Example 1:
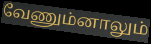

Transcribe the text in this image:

வேணும்னாலும்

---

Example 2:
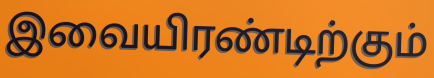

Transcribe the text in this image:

இவையிரண்டிற்கும்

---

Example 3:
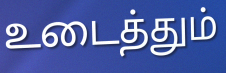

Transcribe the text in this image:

உடைத்தும்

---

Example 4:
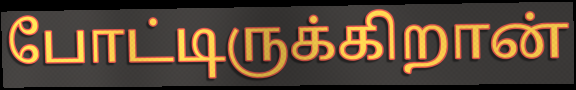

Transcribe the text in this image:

போட்டிருக்கிறான்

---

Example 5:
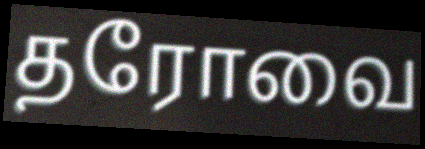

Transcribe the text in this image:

தரோவை